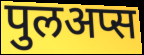
पुलअप्स